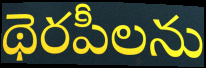
థెరపీలను